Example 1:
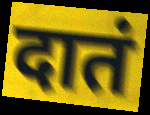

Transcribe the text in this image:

दातं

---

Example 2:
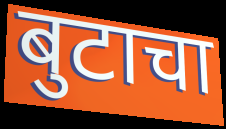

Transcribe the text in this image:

बुटाचा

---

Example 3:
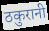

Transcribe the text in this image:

ठकुरानी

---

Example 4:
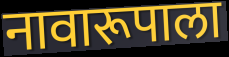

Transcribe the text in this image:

नावारूपाला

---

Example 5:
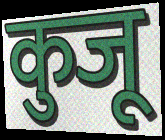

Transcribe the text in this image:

कुजू